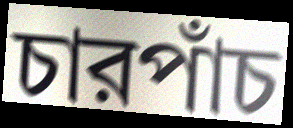
চারপাঁচ